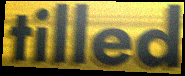
tilled